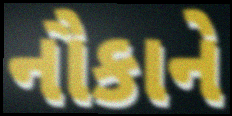
નૌકાને